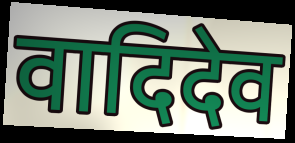
वादिदेव